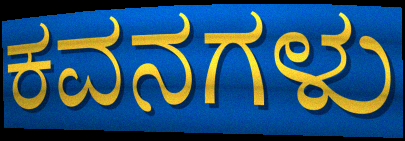
ಕವನಗಳು